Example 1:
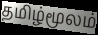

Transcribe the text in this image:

தமிழ்மூலம்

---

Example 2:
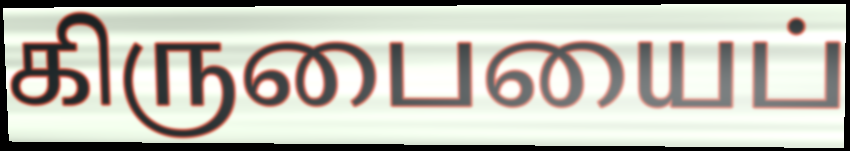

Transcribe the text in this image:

கிருபையைப்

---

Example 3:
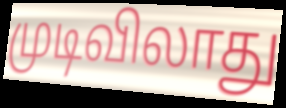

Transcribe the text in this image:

முடிவிலாது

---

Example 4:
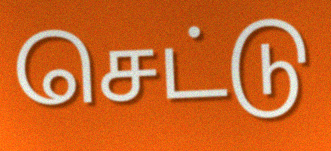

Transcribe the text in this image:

செட்டு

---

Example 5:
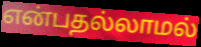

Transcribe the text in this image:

என்பதல்லாமல்